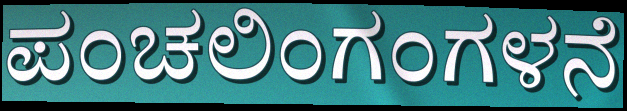
ಪಂಚಲಿಂಗಂಗಳನೆ